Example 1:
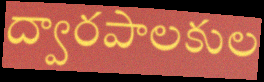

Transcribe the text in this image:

ద్వారపాలకుల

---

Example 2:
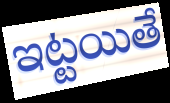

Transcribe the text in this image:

ఇట్టయితే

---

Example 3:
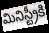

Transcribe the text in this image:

మినిస్ట్రీకి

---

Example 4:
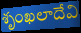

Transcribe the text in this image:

శృంఖలాదేవి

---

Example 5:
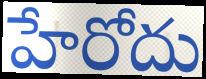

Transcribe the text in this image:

హేరోదు